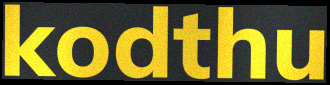
kodthu